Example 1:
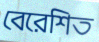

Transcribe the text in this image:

বেরেশিত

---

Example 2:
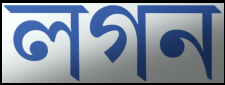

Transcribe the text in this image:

লগন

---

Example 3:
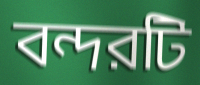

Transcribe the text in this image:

বন্দরটি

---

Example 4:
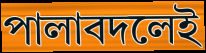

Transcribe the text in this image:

পালাবদলেই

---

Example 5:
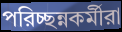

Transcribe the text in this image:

পরিচ্ছন্নকর্মীরা